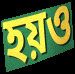
হয়ও